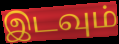
இடவும்